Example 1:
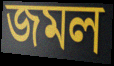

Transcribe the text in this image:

জমল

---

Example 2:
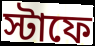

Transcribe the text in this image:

স্টাফে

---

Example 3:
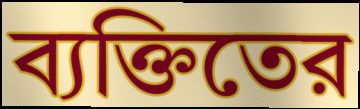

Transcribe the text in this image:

ব্যক্তিতের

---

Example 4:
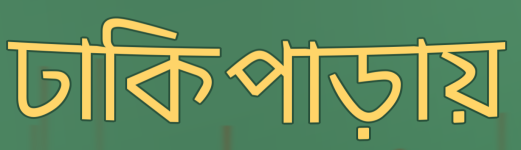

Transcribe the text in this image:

ঢাকিপাড়ায়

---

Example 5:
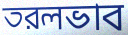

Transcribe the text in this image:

তরলভাব